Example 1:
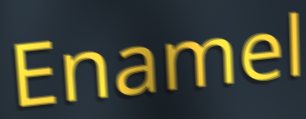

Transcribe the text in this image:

Enamel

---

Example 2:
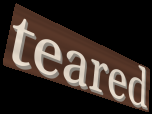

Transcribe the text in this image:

teared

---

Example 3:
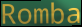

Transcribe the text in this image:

Romba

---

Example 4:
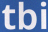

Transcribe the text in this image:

tbi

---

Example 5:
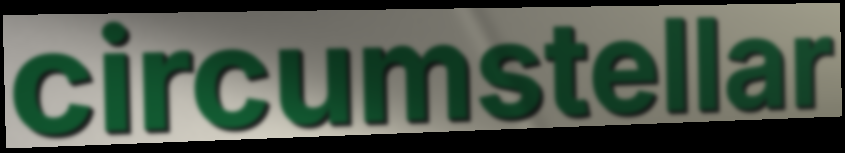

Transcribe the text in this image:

circumstellar